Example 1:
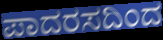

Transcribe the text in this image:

ಪಾದರಸದಿಂದ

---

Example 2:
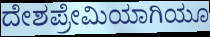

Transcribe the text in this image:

ದೇಶಪ್ರೇಮಿಯಾಗಿಯೂ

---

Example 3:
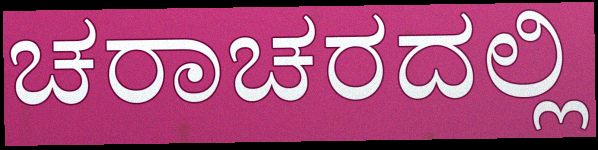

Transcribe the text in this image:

ಚರಾಚರದಲ್ಲಿ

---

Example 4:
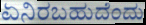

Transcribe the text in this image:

ಏನಿರಬಹುದೆಂದು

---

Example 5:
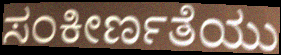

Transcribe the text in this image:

ಸಂಕೀರ್ಣತೆಯು